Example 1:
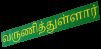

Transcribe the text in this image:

வருணித்துள்ளார்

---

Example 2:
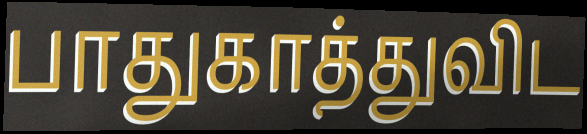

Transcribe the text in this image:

பாதுகாத்துவிட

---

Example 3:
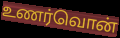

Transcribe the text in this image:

உணர்வொன்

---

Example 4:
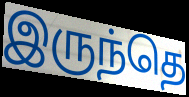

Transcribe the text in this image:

இருந்தெ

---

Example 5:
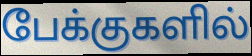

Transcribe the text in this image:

பேக்குகளில்